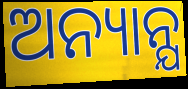
ଅନ୍ୟାନ୍ଯ